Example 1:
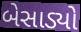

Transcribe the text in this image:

બેસાડ્યો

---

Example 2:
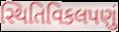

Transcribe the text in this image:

સ્થિતિવિકલપણું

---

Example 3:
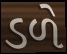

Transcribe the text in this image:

ડળે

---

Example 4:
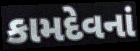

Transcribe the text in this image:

કામદેવનાં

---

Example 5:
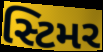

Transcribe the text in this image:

સ્ટિમર